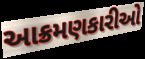
આક્રમણકારીઓ